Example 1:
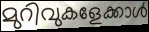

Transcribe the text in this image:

മുറിവുകളേക്കാൾ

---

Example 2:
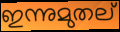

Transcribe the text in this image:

ഇന്നുമുതല്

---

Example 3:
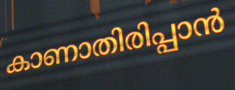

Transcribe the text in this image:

കാണാതിരിപ്പാൻ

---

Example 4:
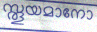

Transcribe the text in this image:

സ്തൂയമാനോ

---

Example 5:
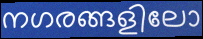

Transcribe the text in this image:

നഗരങ്ങളിലോ